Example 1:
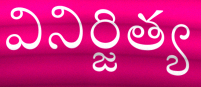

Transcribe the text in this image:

వినిర్జిత్య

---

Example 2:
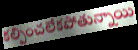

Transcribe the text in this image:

కల్పించలేకపోతున్నాయి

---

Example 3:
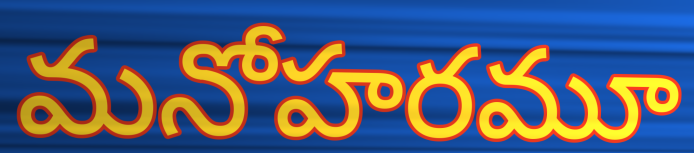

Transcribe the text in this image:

మనోహరమూ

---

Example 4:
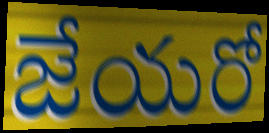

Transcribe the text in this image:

జేయరో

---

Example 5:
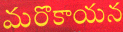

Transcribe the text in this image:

మరొకాయన